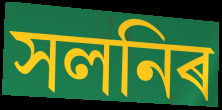
সলনিৰ